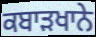
ਕਬਾੜਖਾਨੇ